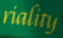
riality